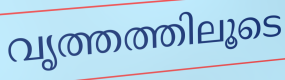
വൃത്തത്തിലൂടെ